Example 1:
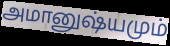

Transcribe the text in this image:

அமானுஷ்யமும்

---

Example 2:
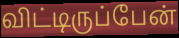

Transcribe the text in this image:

விட்டிருப்பேன்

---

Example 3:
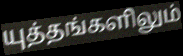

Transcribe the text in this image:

யுத்தங்களிலும்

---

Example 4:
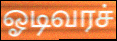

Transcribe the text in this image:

ஓடிவரச்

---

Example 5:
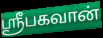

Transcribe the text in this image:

ஸ்ரீபகவான்